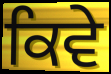
ਕਿਵੇ